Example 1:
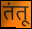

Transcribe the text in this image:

तंतू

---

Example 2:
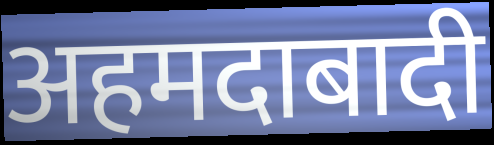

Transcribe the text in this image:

अहमदाबादी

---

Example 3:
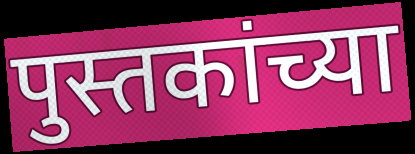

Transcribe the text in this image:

पुस्तकांच्या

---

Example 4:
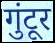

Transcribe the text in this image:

गुंटूर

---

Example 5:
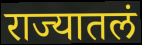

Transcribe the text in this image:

राज्यातलं